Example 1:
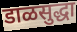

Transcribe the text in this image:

डाळसुद्धा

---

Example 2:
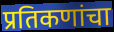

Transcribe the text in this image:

प्रतिकणांचा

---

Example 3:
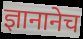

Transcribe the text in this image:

ज्ञानानेच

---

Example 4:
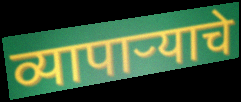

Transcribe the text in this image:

व्यापाऱ्याचे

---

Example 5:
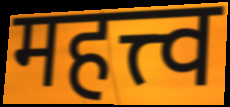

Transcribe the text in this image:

महत्त्व